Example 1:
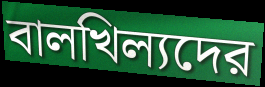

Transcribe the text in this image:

বালখিল্যদের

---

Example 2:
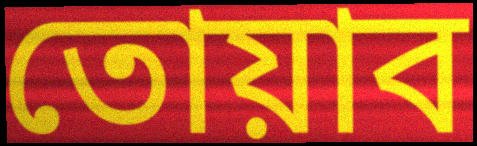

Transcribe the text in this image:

তোয়াব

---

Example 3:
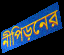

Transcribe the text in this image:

নীপিড়নের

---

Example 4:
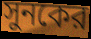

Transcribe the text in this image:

সুনকের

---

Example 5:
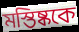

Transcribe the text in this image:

মস্তিষ্ককে